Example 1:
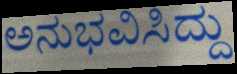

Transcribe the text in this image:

ಅನುಭವಿಸಿದ್ದು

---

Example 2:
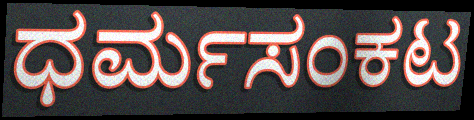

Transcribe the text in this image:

ಧರ್ಮಸಂಕಟ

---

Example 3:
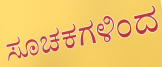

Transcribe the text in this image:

ಸೂಚಕಗಳಿಂದ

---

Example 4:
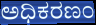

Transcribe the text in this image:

ಅಧಿಕರಣಂ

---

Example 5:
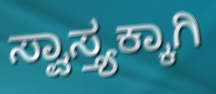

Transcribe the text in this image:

ಸ್ವಾಸ್ತ್ಯಕ್ಕಾಗಿ